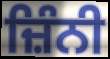
ਜ਼ਿੰਨੀ